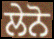
ਲੇਨੋ